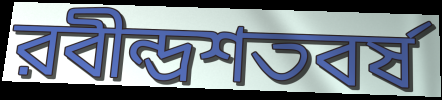
রবীন্দ্রশতবর্ষ